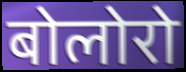
बोलोरो